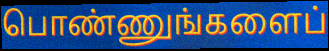
பொண்ணுங்களைப்